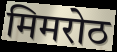
मिमरोठ